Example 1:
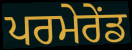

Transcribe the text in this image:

ਪਰਮੇਰੇਂਡ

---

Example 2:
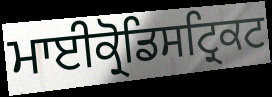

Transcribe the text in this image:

ਮਾਈਕ੍ਰੋਡਿਸਟ੍ਰਿਕਟ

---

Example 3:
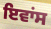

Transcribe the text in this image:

ਇਵਾਂਸ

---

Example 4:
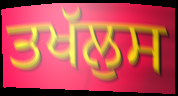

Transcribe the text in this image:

ਤਖੱਲੁਸ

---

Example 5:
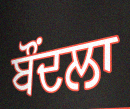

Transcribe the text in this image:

ਬੌਂਦਲਾ